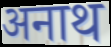
अनाथ